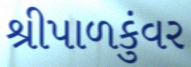
શ્રીપાળકુંવર